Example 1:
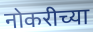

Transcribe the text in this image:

नोकरीच्या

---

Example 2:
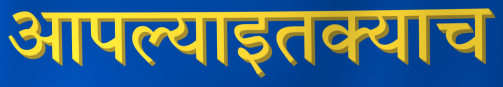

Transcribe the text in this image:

आपल्याइतक्याच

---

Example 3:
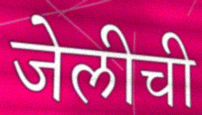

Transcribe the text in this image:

जेलीची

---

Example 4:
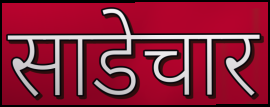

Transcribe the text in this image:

साडेचार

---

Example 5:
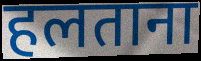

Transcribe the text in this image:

हलताना